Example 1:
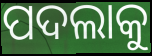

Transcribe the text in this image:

ପଦଲାକୁ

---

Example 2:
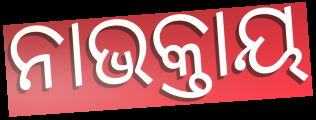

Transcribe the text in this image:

ନାଭକ୍ତାୟ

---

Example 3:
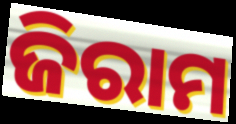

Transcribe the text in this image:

ଜିରାମ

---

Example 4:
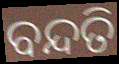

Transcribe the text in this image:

ବନ୍ଦତି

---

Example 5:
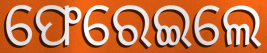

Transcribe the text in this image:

ଫେରେଇଲେ